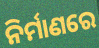
ନିର୍ମାଣରେ